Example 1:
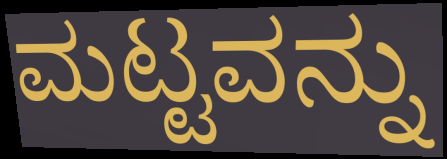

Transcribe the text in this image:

ಮಟ್ಟವನ್ನು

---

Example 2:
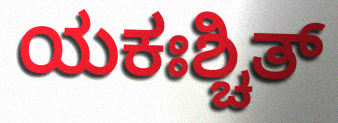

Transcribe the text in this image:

ಯಕಃಶ್ಚಿತ್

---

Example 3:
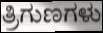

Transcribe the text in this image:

ತ್ರಿಗುಣಗಳು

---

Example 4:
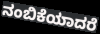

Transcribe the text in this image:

ನಂಬಿಕೆಯಾದರೆ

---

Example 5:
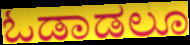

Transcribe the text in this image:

ಓಡಾಡಲೂ